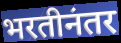
भरतीनंतर